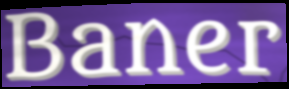
Baner